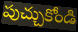
పుచ్చుకోండి